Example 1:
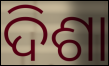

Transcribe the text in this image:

ଦିଶା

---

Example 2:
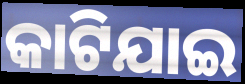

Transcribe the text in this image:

କାଟିଯାଇ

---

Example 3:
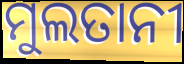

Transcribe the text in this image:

ମୁଲତାନୀ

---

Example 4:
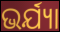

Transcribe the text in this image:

ଭର୍ଯ୍ୟା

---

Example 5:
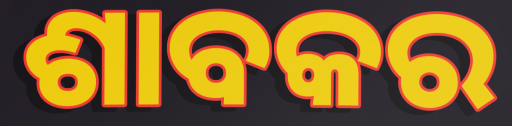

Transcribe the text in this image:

ଶାବକର